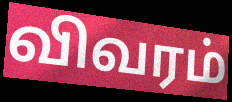
விவரம்